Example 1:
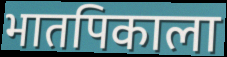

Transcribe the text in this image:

भातपिकाला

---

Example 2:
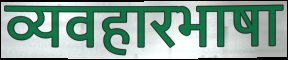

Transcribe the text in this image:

व्यवहारभाषा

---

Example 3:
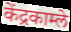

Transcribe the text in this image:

केंद्रकाम्ले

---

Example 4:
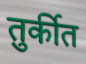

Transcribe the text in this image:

तुर्कीत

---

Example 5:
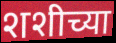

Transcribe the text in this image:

शशीच्या